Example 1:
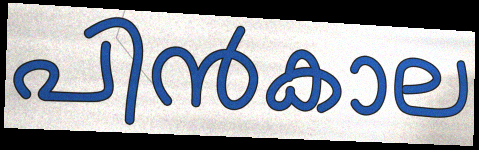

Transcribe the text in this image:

പിൻകാല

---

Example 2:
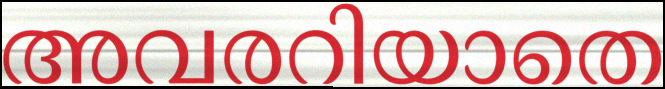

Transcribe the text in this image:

അവരറിയാതെ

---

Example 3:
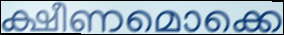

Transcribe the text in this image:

ക്ഷീണമൊക്കെ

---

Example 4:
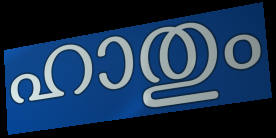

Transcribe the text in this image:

ഹാതും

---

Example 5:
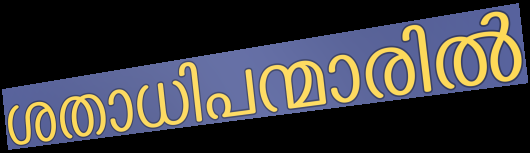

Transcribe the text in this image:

ശതാധിപന്മാരിൽ